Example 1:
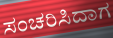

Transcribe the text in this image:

ಸಂಚರಿಸಿದಾಗ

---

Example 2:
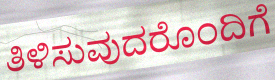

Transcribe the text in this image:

ತಿಳಿಸುವುದರೊಂದಿಗೆ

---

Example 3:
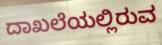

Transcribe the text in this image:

ದಾಖಲೆಯಲ್ಲಿರುವ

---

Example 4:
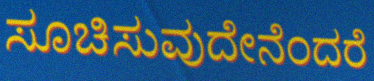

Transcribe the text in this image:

ಸೂಚಿಸುವುದೇನೆಂದರೆ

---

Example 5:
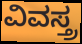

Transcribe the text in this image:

ವಿವಸ್ತ್ರ